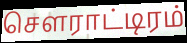
சௌராட்டிரம்